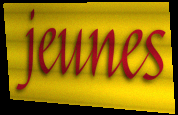
jeunes